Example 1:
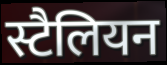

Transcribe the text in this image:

स्टैलियन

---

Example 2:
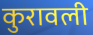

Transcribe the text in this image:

कुरावली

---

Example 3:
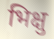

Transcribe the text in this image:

भिक्षु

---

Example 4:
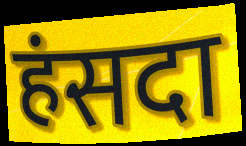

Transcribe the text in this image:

हंसदा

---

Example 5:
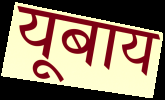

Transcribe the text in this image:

यूबाय